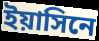
ইয়াসিনে